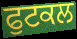
ਫੁਟਕਲ